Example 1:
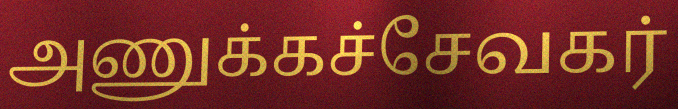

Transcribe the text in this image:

அணுக்கச்சேவகர்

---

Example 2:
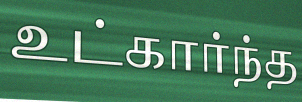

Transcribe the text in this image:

உட்கார்ந்த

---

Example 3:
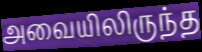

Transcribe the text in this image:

அவையிலிருந்த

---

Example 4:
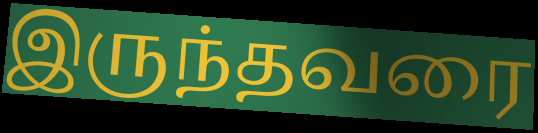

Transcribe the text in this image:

இருந்தவரை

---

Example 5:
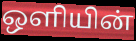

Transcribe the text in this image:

ஒளியின்